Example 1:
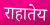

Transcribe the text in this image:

राहातेय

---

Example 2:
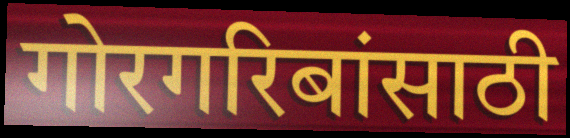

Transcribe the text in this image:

गोरगरिबांसाठी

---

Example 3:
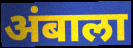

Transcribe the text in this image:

अंबाला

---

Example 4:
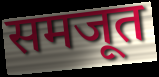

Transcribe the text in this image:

समजूत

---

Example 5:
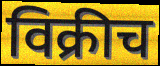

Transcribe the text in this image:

विक्रीच